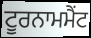
ਟੂਰਨਾਮਮੈਂਟ